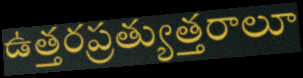
ఉత్తరప్రత్యుత్తరాలూ